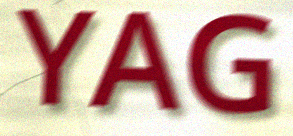
YAG